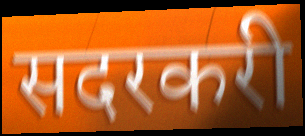
सदरकरी